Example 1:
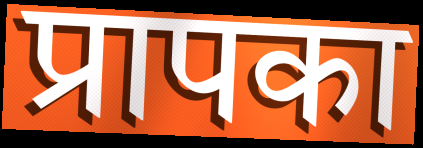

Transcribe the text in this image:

प्रापका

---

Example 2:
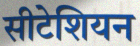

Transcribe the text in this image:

सीटेशियन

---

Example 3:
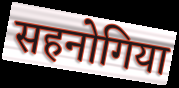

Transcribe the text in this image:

सहनोगिया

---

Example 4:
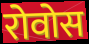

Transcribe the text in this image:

रोवोस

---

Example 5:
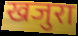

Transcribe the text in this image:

खजुरा